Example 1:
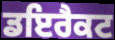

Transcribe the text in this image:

ਡਇਰੈਕਟ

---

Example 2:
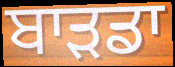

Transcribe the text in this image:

ਬਾੜਡਾ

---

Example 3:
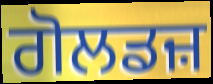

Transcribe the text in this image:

ਗੋਲਡਜ਼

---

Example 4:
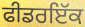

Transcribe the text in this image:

ਫੀਡਰਇੱਕ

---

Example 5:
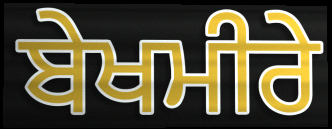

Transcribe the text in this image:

ਬੇਖਮੀਰੇ